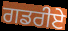
ਗਡਰੀਏ